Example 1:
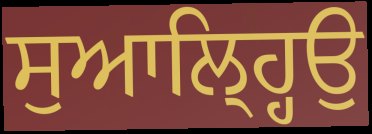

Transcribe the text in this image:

ਸੁਆਲ੍ਹ੍ਹਿਉ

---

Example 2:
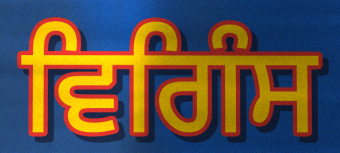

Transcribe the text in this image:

ਵਿਗਿੰਸ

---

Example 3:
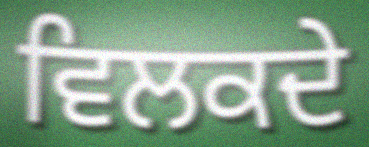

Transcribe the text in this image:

ਵਿਲਕਦੇ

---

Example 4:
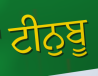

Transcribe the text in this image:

ਟੀਨੁਬੂ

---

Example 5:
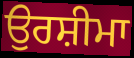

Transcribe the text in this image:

ਉਰਸ਼ੀਮਾ